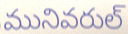
మునివరుల్